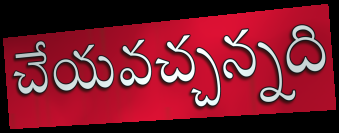
చేయవచ్చన్నది